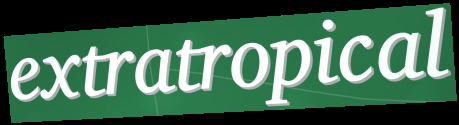
extratropical